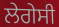
ਲੇਗੇਸੀ